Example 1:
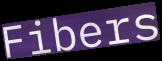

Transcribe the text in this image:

Fibers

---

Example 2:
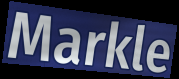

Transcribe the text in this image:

Markle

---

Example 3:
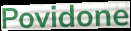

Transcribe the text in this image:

Povidone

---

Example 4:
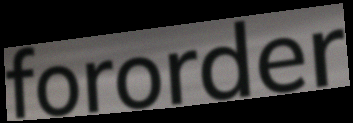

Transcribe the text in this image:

fororder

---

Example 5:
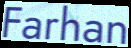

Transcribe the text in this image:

Farhan